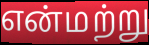
என்மற்று